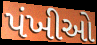
પંખીઓ